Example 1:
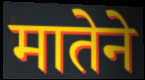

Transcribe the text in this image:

मातेने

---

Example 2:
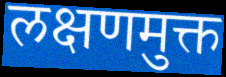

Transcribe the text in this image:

लक्षणमुक्त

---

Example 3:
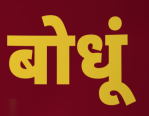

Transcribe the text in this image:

बोधूं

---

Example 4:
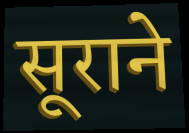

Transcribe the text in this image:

सूराने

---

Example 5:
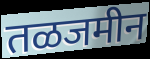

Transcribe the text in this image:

तळजमीन